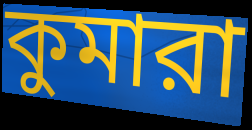
কুমারা